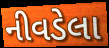
નીવડેલા